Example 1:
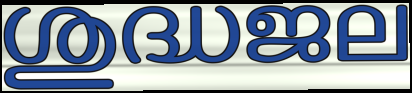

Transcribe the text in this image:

ശുദ്ധജല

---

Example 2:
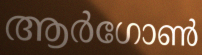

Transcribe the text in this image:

ആർഗോൺ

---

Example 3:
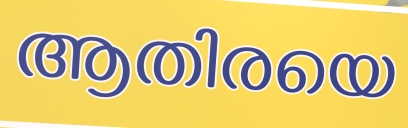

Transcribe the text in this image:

ആതിരയെ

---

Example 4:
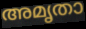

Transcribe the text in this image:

അമൃതാ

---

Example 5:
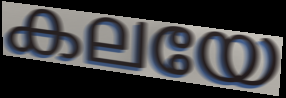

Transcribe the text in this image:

കലയേ